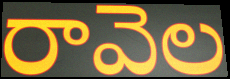
రావెల